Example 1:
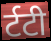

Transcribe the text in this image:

र्टटी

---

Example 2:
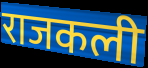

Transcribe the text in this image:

राजकली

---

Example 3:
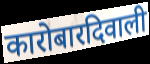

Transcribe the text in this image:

कारोबारदिवाली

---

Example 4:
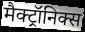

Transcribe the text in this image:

मैक्ट्रॉनिक्स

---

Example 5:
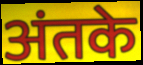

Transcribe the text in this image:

अंतके